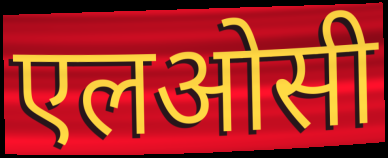
एलओसी